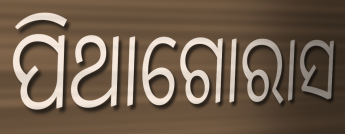
ପିଥାଗୋରାସ